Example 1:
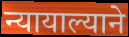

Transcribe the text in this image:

न्यायाल्याने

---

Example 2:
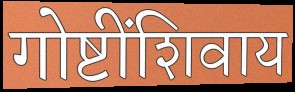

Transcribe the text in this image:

गोष्टींशिवाय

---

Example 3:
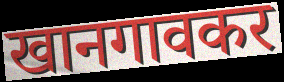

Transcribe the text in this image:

खानगावकर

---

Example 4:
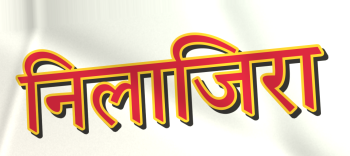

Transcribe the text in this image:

निलाजिरा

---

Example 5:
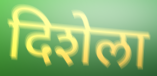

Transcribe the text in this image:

दिशेला